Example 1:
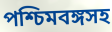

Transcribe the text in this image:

পশ্চিমবঙ্গসহ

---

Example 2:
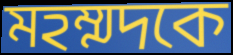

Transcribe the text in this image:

মহম্মদকে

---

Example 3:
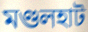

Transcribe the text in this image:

মণ্ডলহাট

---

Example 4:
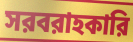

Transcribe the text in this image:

সরবরাহকারি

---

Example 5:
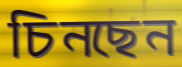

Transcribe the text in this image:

চিনছেন